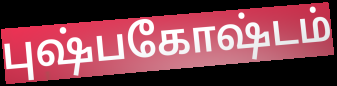
புஷ்பகோஷ்டம்